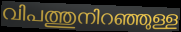
വിപത്തുനിറഞ്ഞുള്ള